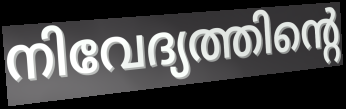
നിവേദ്യത്തിന്റെ